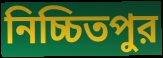
নিচ্চিতপুর